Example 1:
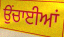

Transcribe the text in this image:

ਉਂਚਾਈਆਂ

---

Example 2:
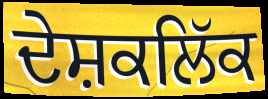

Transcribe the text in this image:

ਦੇਸ਼ਕਲਿੱਕ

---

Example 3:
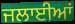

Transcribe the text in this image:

ਜਲਾਈਆਂ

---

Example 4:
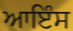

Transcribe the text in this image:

ਆਇੰਸ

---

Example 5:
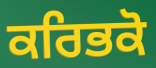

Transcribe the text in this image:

ਕਰਿਭਕੋ